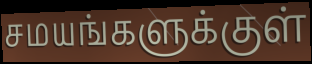
சமயங்களுக்குள்